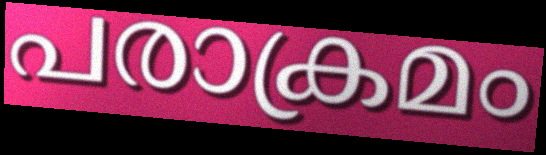
പരാക്രമം